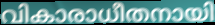
വികാരാധീതനായി